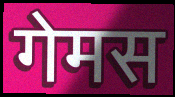
गेमस